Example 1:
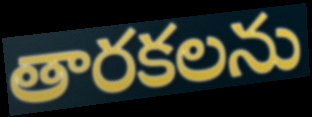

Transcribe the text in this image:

తారకలను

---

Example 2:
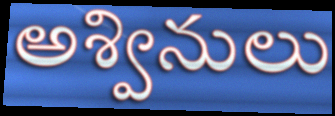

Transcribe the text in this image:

అశ్వినులు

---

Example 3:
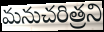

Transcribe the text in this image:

మనుచరిత్రని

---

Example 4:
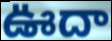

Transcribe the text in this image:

ఊదా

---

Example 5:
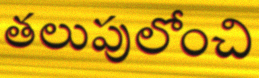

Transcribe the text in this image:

తలుపులోంచి